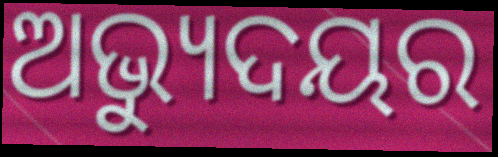
ଅଭ୍ୟୁଦୟର